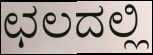
ಛಲದಲ್ಲಿ